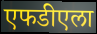
एफडीएला